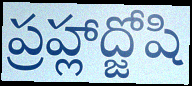
ప్రహ్లాద్జోషి